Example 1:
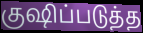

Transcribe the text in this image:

குஷிப்படுத்த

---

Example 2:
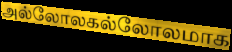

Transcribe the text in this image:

அல்லோலகல்லோலமாக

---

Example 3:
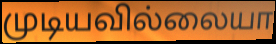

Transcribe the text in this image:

முடியவில்லையா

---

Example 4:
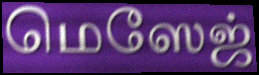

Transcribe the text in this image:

மெஸேஜ்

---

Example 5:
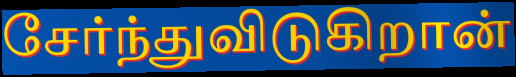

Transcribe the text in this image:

சேர்ந்துவிடுகிறான்